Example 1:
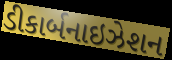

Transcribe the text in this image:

ડીકાર્બનાઇઝેશન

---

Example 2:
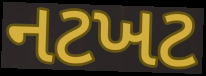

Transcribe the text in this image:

નટખટ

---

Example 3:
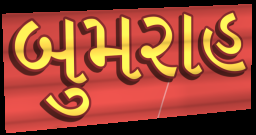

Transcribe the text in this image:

બુમરાહ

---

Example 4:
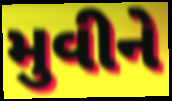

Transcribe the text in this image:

મુવીને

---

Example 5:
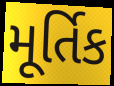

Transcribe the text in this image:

મૂર્તિક